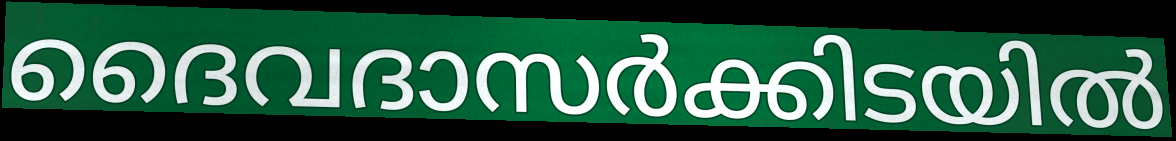
ദൈവദാസർക്കിടയിൽ